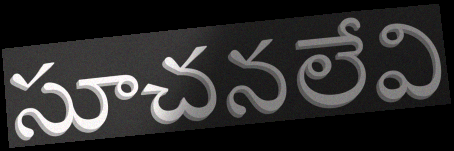
సూచనలేవి